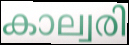
കാല്വരി